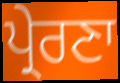
ਪ੍ਰੇਰਣਾ